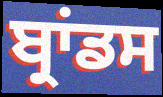
ਬ੍ਰਾਂਡਸ